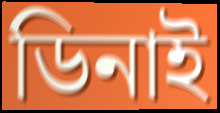
ডিনাই